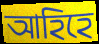
আহিহে